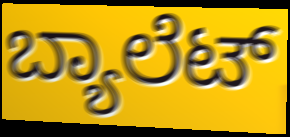
ಬ್ಯಾಲೆಟ್